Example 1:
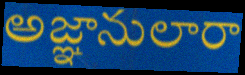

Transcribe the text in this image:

అజ్ఞానులారా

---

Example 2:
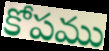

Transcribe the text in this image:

కోపము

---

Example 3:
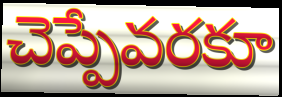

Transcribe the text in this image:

చెప్పేవరకూ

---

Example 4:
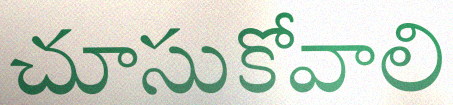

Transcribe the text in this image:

చూసుకోవాలి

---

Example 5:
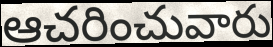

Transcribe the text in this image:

ఆచరించువారు